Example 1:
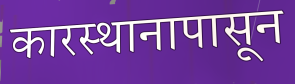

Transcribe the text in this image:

कारस्थानापासून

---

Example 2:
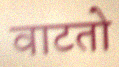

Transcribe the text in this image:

वाटतो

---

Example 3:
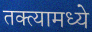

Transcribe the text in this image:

तक्त्यामध्ये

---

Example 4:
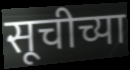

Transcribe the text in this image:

सूचीच्या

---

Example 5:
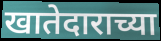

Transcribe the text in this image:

खातेदाराच्या